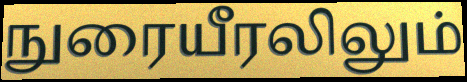
நுரையீரலிலும்